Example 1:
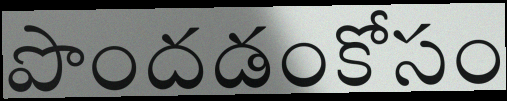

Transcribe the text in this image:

పొందడంకోసం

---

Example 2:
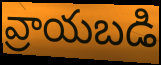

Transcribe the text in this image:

వ్రాయబడి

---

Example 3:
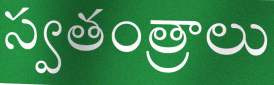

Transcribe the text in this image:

స్వతంత్రాలు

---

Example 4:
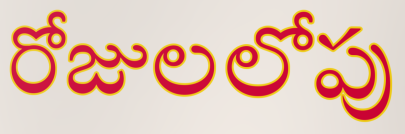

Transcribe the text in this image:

రోజులలోపు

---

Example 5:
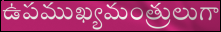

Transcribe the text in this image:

ఉపముఖ్యమంత్రులుగా